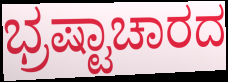
ಭ್ರಷ್ಟಾಚಾರದ